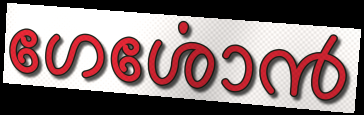
ഗേൎശോൻ